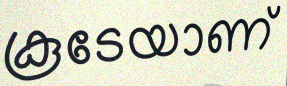
കൂടേയാണ്